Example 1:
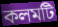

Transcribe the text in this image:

কলমটি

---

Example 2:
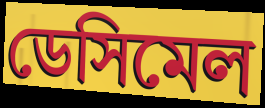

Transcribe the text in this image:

ডেসিমেল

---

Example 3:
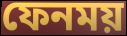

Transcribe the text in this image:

ফেনময়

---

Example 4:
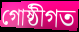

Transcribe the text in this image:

গোষ্ঠীগত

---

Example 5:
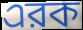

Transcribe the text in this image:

এরক